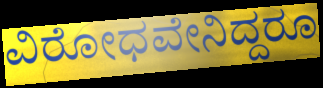
ವಿರೋಧವೇನಿದ್ದರೂ